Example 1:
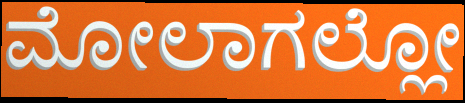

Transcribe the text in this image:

ಮೋಲಾಗಲ್ಲೋ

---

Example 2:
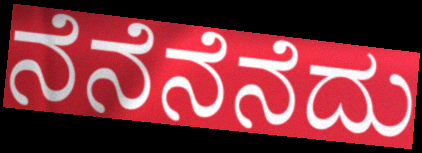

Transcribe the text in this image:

ನೆನೆನೆನೆದು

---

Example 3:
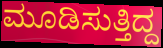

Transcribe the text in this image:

ಮೂಡಿಸುತ್ತಿದ್ದ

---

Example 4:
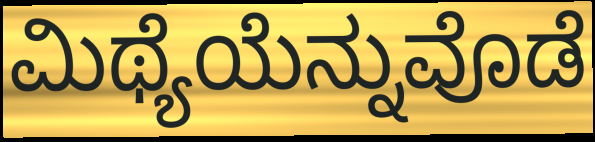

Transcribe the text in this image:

ಮಿಥ್ಯೆಯೆನ್ನುವೊಡೆ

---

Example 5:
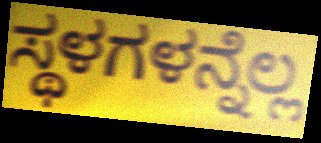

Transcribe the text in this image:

ಸ್ಥಳಗಳನ್ನೆಲ್ಲ